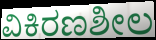
ವಿಕಿರಣಶೀಲ